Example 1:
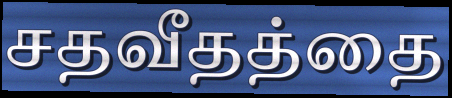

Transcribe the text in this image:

சதவீதத்தை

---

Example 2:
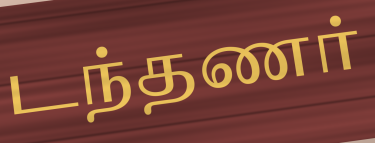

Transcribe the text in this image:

டந்தணர்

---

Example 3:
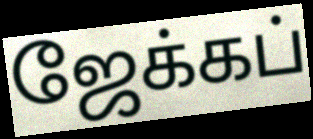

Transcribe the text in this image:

ஜேக்கப்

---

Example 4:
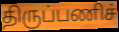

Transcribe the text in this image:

திருப்பணிச்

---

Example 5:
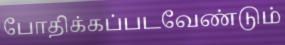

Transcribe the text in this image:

போதிக்கப்படவேண்டும்